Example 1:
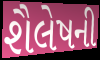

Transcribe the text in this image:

શૈલેષની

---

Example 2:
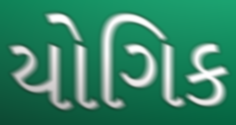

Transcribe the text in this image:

યોગિક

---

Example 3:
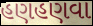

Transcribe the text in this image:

હણહણવા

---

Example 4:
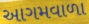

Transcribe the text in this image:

આગમવાળા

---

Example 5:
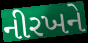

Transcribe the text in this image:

નીરખને